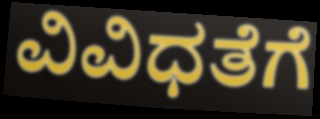
ವಿವಿಧತೆಗೆ